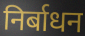
निर्बाधन